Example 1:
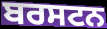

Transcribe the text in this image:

ਬਰਸਟਨ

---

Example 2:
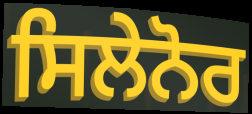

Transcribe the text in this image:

ਸਿਲੇਨੋਰ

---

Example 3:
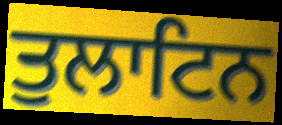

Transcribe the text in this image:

ਤੁਲਾਟਿਨ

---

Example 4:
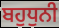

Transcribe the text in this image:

ਬਹੁਧੁਨੀ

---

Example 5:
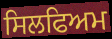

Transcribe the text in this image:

ਸਿਲਫਿਅਮ